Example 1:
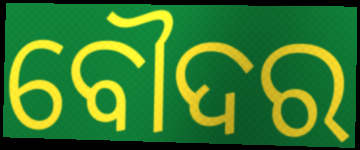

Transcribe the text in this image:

ବୌଦର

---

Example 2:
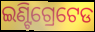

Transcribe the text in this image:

ଇଣ୍ଟିଗ୍ରେଟେଡ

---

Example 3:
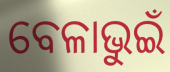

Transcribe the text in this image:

ବେଳାଭୁଇଁ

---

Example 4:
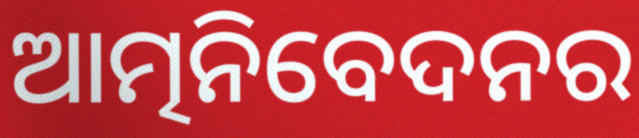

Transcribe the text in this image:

ଆତ୍ମନିବେଦନର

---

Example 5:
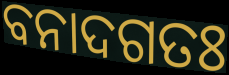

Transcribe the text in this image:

ବନାଦଗତଃ